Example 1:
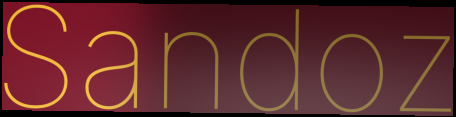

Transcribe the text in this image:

Sandoz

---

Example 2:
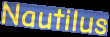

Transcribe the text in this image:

Nautilus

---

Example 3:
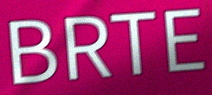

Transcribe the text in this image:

BRTE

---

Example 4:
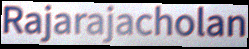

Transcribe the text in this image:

Rajarajacholan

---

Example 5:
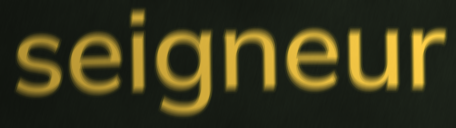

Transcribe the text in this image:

seigneur